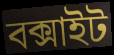
বক্সাইট